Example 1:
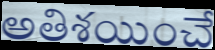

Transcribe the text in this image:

అతిశయించే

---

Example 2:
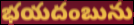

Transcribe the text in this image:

భయదంబును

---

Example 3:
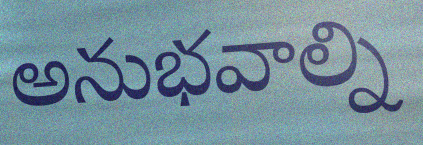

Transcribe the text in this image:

అనుభవాల్ని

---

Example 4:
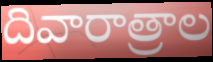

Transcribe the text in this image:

దివారాత్రాల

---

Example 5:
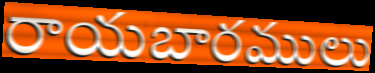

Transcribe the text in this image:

రాయబారములు